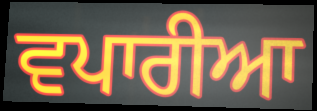
ਵਪਾਰੀਆ